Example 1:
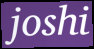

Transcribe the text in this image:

joshi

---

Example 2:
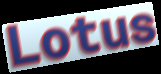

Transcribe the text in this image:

Lotus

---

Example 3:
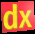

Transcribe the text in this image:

dx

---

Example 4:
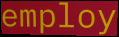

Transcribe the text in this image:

employ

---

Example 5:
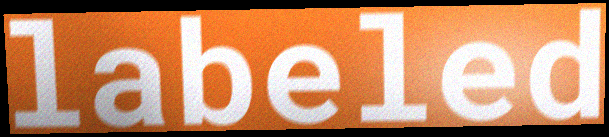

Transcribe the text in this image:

labeled